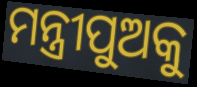
ମନ୍ତ୍ରୀପୁଅକୁ